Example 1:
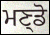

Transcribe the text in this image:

ਮਣ੍ਡੋ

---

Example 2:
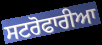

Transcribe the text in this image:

ਸਟਰੋਫਾਰੀਆ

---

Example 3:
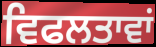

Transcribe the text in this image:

ਵਿਫਲਤਾਵਾਂ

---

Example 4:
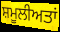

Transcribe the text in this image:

ਸ਼ਮੂਲੀਅਤਾਂ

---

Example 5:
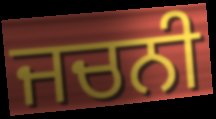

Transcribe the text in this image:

ਜਚਨੀ